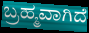
ಬ್ರಹ್ಮವಾಗಿದೆ